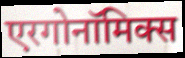
एरगोनॉमिक्स